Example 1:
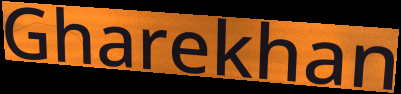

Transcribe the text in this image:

Gharekhan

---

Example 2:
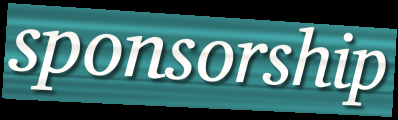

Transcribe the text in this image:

sponsorship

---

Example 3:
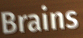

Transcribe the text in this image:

Brains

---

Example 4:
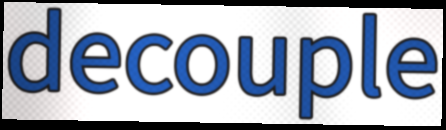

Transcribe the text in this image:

decouple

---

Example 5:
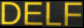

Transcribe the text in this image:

DELF